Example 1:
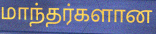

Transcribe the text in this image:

மாந்தர்களான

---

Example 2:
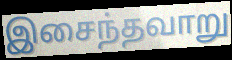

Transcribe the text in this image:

இசைந்தவாறு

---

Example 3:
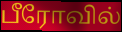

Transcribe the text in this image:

பீரோவில்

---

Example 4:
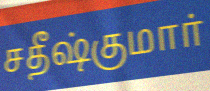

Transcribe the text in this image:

சதீஷ்குமார்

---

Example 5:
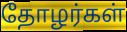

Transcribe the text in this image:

தோழர்கள்